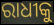
ରାଧୀକୁ